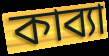
কাব্যা